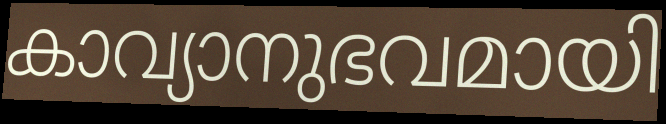
കാവ്യാനുഭവമായി